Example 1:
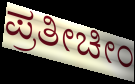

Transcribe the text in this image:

ಪ್ರತೀಚೀಂ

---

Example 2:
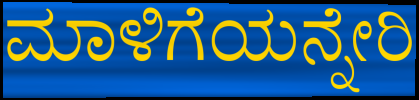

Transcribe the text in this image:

ಮಾಳಿಗೆಯನ್ನೇರಿ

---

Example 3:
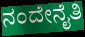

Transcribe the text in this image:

ನಂದೇನೈತಿ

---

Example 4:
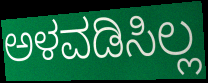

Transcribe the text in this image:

ಅಳವಡಿಸಿಲ್ಲ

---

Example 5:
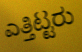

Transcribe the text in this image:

ಎತ್ತಿಟ್ಟರು